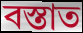
বস্তাত